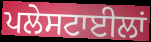
ਪਲੇਸਟਾਈਲਾਂ